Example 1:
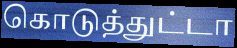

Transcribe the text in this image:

கொடுத்துட்டா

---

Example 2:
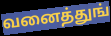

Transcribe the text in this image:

வனைத்துங்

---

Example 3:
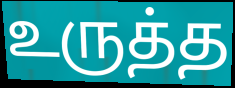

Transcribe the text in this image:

உருத்த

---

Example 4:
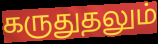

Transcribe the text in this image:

கருதுதலும்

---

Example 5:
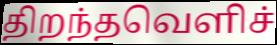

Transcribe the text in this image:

திறந்தவெளிச்